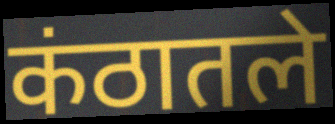
कंठातले